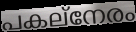
പകല്നേരം